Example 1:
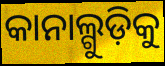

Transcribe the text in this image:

କାନାଲ୍ଗୁଡ଼ିକୁ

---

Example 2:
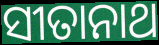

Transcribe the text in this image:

ସୀତାନାଥ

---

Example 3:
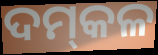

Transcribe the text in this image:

ଦମ୍‌କଳ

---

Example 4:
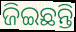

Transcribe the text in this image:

ଜିଇଛନ୍ତି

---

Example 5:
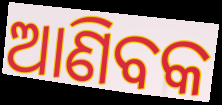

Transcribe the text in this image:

ଆଣିବକ